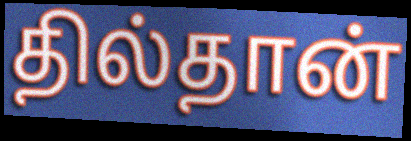
தில்தான்